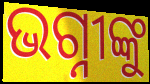
ଭଗ୍ନୀଙ୍କୁ